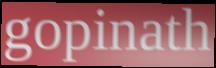
gopinath